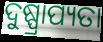
ଦୁଷ୍ପ୍ରାପ୍ୟତା